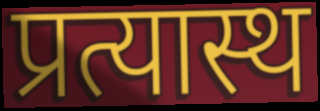
प्रत्यास्थ